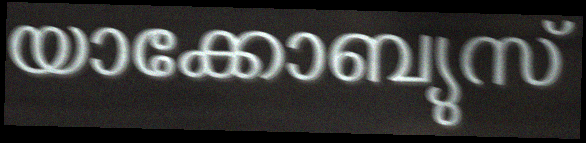
യാക്കോബ്യുസ്